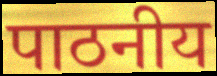
पाठनीय